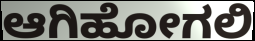
ಆಗಿಹೋಗಲಿ